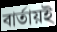
বার্তায়ই